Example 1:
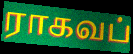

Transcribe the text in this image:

ராகவப்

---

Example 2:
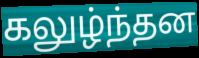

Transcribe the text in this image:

கலுழ்ந்தன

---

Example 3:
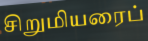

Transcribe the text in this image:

சிறுமியரைப்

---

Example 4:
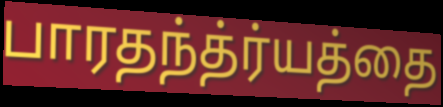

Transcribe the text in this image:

பாரதந்த்ர்யத்தை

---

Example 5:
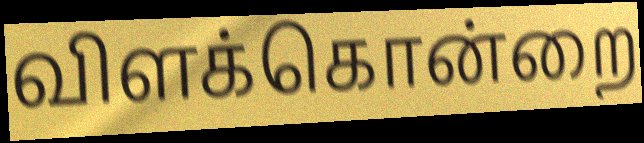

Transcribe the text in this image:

விளக்கொன்றை